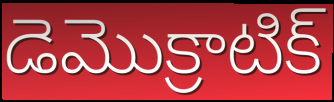
డెమొక్రాటిక్